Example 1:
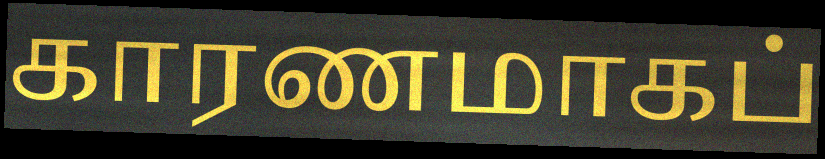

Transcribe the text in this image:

காரணமாகப்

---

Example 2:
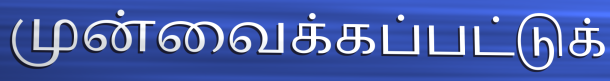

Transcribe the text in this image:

முன்வைக்கப்பட்டுக்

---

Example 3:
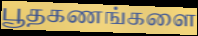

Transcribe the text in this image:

பூதகணங்களை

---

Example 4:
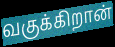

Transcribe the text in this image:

வகுக்கிறான்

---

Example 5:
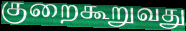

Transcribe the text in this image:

குறைகூறுவது